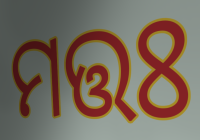
ମତ୍ତଃ